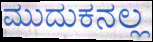
ಮುದುಕನಲ್ಲ